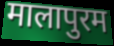
मालापुरम